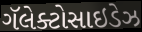
ગૅલેક્ટોસાઇડેઝ